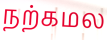
நற்கமல